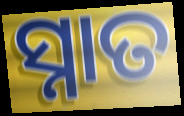
ସ୍ନାତ